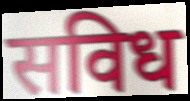
सविध